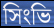
সিংভি